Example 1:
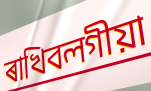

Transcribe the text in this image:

ৰাখিবলগীয়া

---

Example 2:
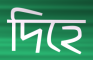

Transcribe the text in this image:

দিহে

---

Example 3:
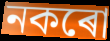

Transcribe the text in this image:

নকৰো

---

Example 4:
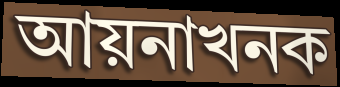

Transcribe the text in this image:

আয়নাখনক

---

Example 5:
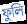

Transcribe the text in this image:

ফুলি